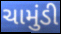
ચામુંડી